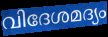
വിദേശമദ്യം